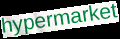
hypermarket